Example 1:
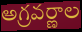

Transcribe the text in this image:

అగ్రవర్ణాల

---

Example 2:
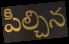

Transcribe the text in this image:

పీల్చిన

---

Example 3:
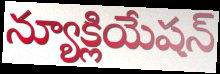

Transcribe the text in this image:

న్యూక్లియేషన్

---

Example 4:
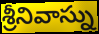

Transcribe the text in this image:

శ్రీనివాస్ను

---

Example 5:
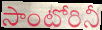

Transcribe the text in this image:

సాంటోరినీ